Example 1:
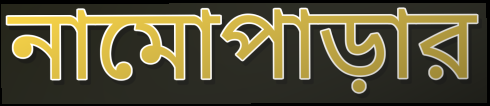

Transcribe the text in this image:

নামোপাড়ার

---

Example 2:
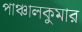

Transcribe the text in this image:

পাঞ্চালকুমার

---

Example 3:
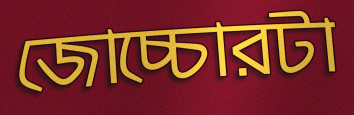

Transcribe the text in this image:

জোচ্চোরটা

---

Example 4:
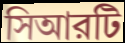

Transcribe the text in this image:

সিআরটি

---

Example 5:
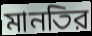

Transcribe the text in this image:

মানতির